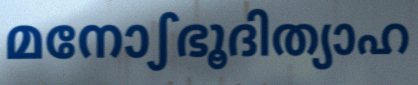
മനോഽഭൂദിത്യാഹ